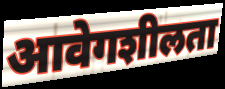
आवेगशीलता